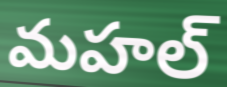
మహల్